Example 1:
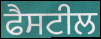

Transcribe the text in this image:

ਫੈਸਟੀਲ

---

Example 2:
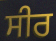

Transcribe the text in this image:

ਸੀਰ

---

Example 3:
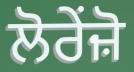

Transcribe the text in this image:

ਲੋਰੇਂਜ਼ੋ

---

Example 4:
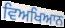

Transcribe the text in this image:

ਵਿਅਖਿਆਨ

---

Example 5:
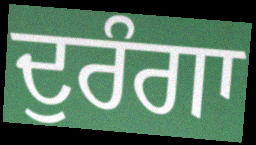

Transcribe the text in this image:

ਦੁਰੰਗਾ